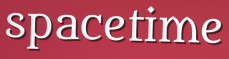
spacetime